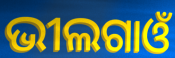
ଭୀଲଗାଓଁ